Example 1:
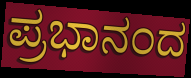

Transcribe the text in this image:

ಪ್ರಭಾನಂದ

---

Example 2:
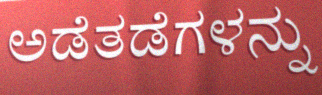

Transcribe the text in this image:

ಅಡೆತಡೆಗಳನ್ನು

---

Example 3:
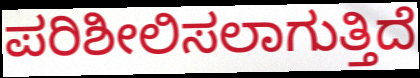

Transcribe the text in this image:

ಪರಿಶೀಲಿಸಲಾಗುತ್ತಿದೆ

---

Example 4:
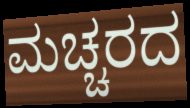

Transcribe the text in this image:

ಮಚ್ಚರದ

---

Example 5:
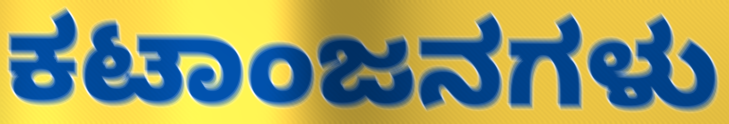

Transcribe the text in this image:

ಕಟಾಂಜನಗಳು